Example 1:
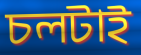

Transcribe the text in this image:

চলটাই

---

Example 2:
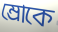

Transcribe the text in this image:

ম্রোকে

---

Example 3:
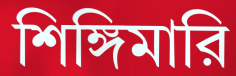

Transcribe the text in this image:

শিঙ্গিমারি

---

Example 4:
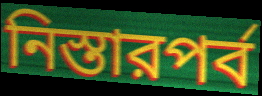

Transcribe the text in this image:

নিস্তারপর্ব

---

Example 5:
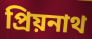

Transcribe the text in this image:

প্রিয়নাথ